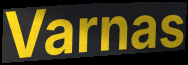
Varnas